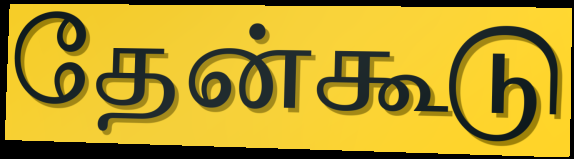
தேன்கூடு